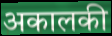
अकालकी